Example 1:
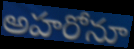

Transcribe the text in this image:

అహరోనూ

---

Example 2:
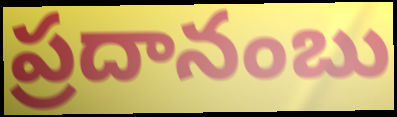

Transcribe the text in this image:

ప్రదానంబు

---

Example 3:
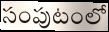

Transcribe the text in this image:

సంపుటంలో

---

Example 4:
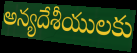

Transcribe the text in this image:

అన్యదేశీయులకు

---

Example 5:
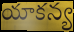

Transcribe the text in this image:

యాకన్య